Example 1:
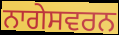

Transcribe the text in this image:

ਨਾਗੇਸਵਰਨ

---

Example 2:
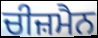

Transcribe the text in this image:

ਚੀਜ਼ਮੈਨ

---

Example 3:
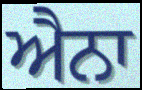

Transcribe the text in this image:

ਐਨਾ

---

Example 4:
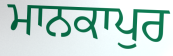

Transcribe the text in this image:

ਮਾਨਕਾਪੁਰ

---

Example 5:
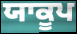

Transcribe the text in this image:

ਯਾਕੂਪ